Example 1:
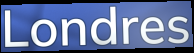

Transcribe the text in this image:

Londres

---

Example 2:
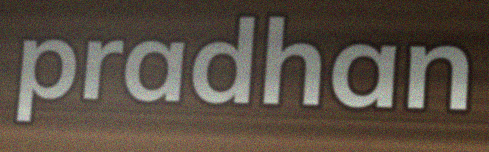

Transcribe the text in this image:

pradhan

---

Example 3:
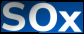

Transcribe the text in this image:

SOx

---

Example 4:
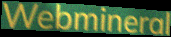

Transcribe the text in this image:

Webmineral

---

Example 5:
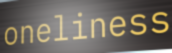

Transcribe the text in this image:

oneliness